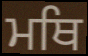
ਮਥਿ